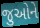
જુઓને